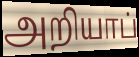
அறியாப்